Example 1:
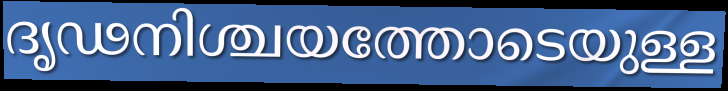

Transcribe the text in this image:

ദൃഢനിശ്ചയത്തോടെയുള്ള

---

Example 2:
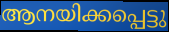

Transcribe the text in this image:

ആനയിക്കപ്പെട്ടു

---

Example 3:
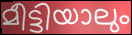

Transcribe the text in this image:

മീട്ടിയാലും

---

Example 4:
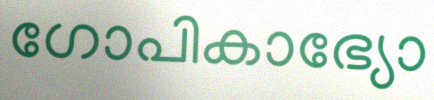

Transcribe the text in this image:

ഗോപികാഭ്യോ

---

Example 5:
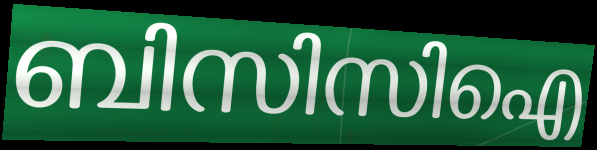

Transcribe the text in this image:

ബിസിസിഐ